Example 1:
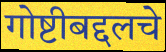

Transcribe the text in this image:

गोष्टीबद्दलचे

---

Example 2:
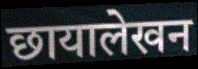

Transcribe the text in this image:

छायालेखन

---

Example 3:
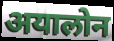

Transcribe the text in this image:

अयालोन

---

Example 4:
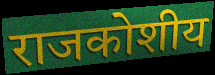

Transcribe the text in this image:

राजकोशीय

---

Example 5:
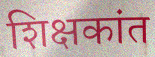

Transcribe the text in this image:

शिक्षकांत